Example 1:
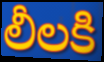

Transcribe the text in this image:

లీలకి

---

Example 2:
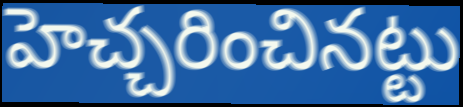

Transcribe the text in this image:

హెచ్చరించినట్టు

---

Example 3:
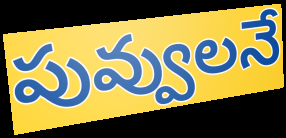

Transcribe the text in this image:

పువ్వులనే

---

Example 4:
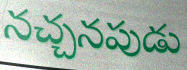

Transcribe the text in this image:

నచ్చనపుడు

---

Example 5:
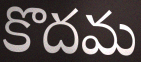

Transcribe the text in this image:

కొదమ